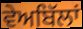
ਵੇਅਬਿੱਲਾਂ